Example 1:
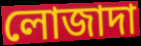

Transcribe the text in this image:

লোজাদা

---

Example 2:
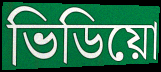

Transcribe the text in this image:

ভিডিয়ো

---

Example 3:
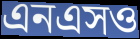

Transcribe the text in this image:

এনএসও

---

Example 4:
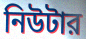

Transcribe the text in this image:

নিউটার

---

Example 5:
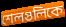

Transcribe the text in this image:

শেলগুলিকে